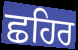
ਛਹਿਰ